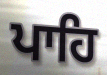
ਪਾਹਿ